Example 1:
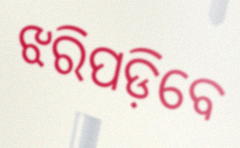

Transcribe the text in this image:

ଝରିପଡ଼ିବେ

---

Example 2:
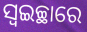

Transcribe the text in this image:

ସ୍ଵଇଚ୍ଛାରେ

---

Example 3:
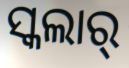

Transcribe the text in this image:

ସ୍କଲାର୍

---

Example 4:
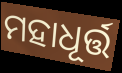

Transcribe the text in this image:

ମହାଧୂର୍ତ୍ତ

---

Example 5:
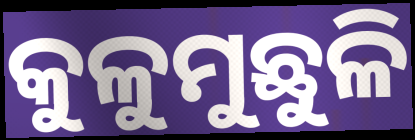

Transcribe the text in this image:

କୁଳୁମୁଛୁଳି